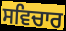
ਸਵਿਚਾਰ